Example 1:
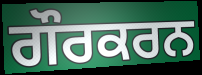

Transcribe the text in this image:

ਗੌਰਕਰਨ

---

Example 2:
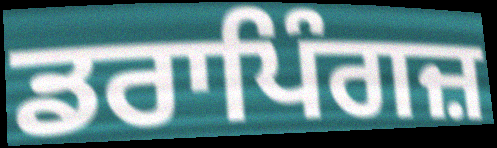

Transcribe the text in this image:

ਡਰਾਪਿੰਗਜ਼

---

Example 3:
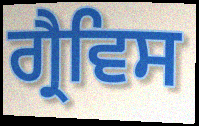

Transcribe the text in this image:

ਗ੍ਰੈਵਿਸ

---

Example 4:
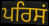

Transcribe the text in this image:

ਪਰਿਸਂ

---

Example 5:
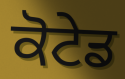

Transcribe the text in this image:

ਕੋਟੇਡ